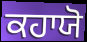
ਕਹਾਯੋ